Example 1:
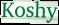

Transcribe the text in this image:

Koshy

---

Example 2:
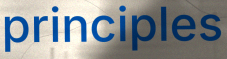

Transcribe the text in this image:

principles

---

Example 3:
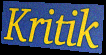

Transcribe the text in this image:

Kritik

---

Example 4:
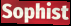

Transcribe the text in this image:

Sophist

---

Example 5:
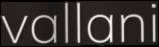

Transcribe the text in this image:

vallani